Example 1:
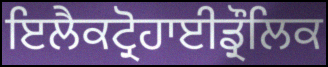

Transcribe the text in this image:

ਇਲੈਕਟ੍ਰੋਹਾਈਡ੍ਰੌਲਿਕ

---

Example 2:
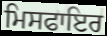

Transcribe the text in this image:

ਮਿਸਫਾਇਰ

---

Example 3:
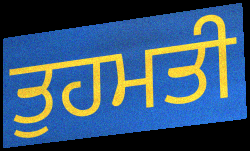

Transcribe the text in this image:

ਤੁਹਮਤੀ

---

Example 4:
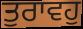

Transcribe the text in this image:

ਤੁਰਾਵਹੁ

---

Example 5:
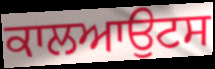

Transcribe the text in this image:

ਕਾਲਆਉਟਸ